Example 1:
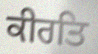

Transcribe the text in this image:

ਕੀਰਤਿ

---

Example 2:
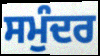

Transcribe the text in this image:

ਸਮੁੰਦਰ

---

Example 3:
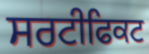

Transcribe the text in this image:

ਸਰਟੀਫਿਕਟ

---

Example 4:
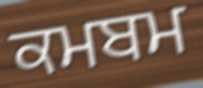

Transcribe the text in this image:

ਕਮਬਮ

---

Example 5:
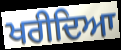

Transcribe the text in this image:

ਖਰੀਦਿਆ